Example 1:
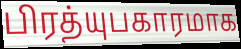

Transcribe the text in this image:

பிரத்யுபகாரமாக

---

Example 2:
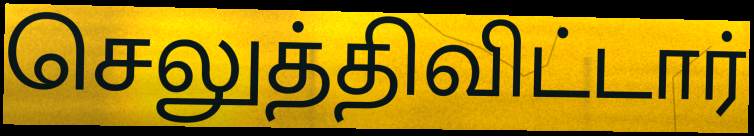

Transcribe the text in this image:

செலுத்திவிட்டார்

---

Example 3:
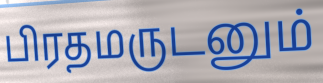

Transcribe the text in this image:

பிரதமருடனும்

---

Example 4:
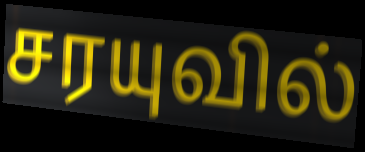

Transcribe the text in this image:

சரயுவில்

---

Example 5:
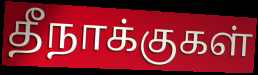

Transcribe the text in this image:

தீநாக்குகள்